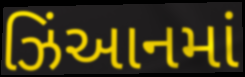
ઝિંઆનમાં